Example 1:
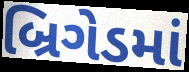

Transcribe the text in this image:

બ્રિગેડમાં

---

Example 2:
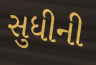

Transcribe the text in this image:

સુધીની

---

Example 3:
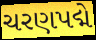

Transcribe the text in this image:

ચરણપદ્મે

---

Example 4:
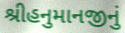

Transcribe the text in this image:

શ્રીહનુમાનજીનું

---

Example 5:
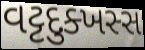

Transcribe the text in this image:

વટ્ટદુક્ખસ્સ